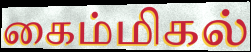
கைம்மிகல்